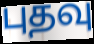
புதவு